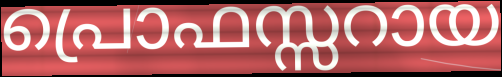
പ്രൊഫസ്സറായ